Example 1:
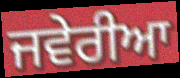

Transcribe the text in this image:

ਜਵੇਰੀਆ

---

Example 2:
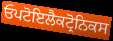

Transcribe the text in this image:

ਓਪਟੋਇਲੈਕਟ੍ਰੋਨਿਕਸ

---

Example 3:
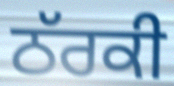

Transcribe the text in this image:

ਠੱਰਕੀ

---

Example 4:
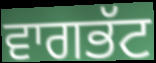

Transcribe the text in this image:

ਵਾਗਭੱਟ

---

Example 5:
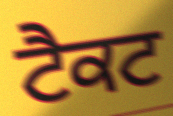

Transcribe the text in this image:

ਟੈਕਟ